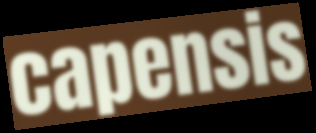
capensis